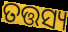
ତତ୍ତସ୍ୟ